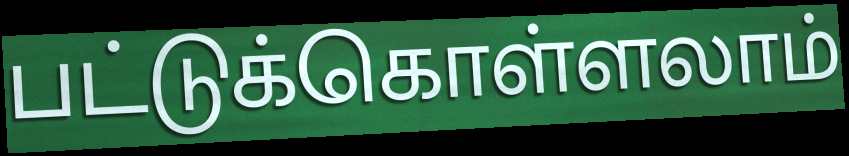
பட்டுக்கொள்ளலாம்